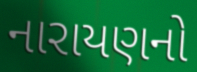
નારાયણનો